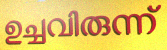
ഉച്ചവിരുന്ന്